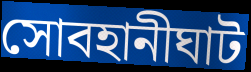
সোবহানীঘাট